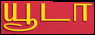
யூடா